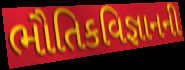
ભૌતિકવિજ્ઞાનની